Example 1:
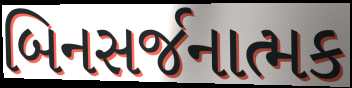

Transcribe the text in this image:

બિનસર્જનાત્મક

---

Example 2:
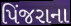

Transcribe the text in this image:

પિંજરાના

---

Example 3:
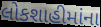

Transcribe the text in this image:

લોકશાહીમાંના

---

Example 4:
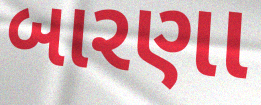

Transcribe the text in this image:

બારણા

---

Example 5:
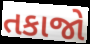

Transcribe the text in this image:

તકાજો